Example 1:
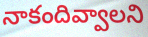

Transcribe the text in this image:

నాకందివ్వాలని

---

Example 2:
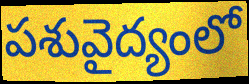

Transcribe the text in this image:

పశువైద్యంలో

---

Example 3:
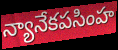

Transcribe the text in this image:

న్యానేకపసింహ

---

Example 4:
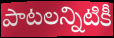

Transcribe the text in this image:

పాటలన్నిటికీ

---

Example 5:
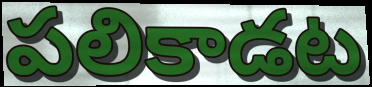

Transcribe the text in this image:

పలికాడట